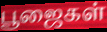
பூஜைகள்